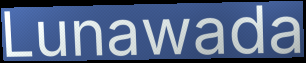
Lunawada